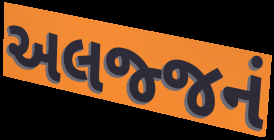
અલજ્જનં